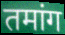
तमांग